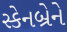
સ્કેનબ્રેને